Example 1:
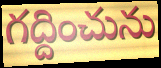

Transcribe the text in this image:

గద్దించును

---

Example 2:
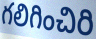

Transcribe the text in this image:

గలిగించిరి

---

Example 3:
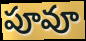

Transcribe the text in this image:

పూవూ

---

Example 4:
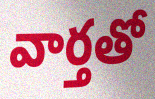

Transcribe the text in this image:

వార్తతో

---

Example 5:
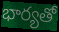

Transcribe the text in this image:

భార్యతో